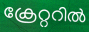
ക്രേറ്ററിൽ